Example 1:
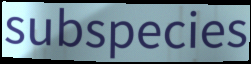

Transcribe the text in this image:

subspecies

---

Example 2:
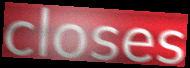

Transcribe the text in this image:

closes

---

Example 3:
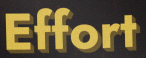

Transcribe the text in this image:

Effort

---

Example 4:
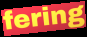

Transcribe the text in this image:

fering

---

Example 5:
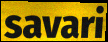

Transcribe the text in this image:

savari